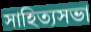
সাহিত্যসভা